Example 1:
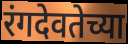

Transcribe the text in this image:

रंगदेवतेच्या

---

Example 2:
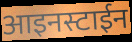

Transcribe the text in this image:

आइनस्टाईन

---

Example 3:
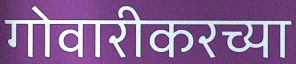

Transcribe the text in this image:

गोवारीकरच्या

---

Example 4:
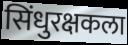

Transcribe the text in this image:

सिंधुरक्षकला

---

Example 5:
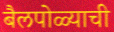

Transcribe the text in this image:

बैलपोळ्याची